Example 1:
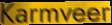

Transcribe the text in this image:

Karmveer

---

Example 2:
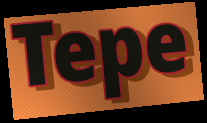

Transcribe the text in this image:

Tepe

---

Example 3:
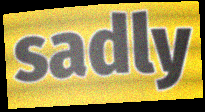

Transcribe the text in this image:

sadly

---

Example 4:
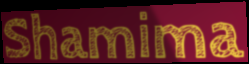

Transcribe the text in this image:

Shamima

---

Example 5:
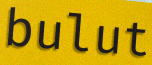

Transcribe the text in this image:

bulut